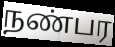
நண்பர